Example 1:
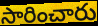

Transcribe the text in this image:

సారించారు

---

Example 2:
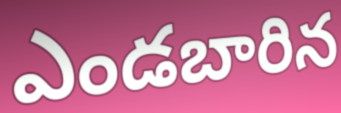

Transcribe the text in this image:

ఎండబారిన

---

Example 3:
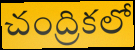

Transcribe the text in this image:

చంద్రికలో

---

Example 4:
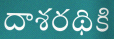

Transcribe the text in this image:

దాశరథికి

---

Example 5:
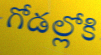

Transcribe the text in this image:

గోడల్లోకి